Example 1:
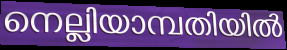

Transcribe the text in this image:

നെല്ലിയാമ്പതിയിൽ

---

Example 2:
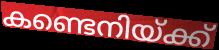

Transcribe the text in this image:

കണ്ടെനിയ്ക്ക്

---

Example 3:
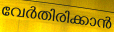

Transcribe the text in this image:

വേർതിരിക്കാൻ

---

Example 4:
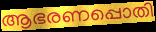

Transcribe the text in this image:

ആഭരണപ്പൊതി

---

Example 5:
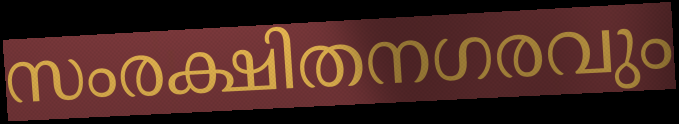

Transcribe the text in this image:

സംരക്ഷിതനഗരവും